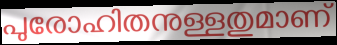
പുരോഹിതനുള്ളതുമാണ്